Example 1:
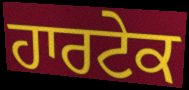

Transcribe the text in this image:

ਹਾਰਟੇਕ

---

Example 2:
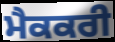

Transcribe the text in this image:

ਮੈਕਕਰੀ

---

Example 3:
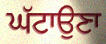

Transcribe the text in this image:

ਘੱਟਾਉਣਾ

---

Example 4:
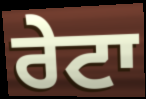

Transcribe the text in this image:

ਰੇਟਾ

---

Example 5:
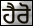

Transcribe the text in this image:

ਹੈਰੋ